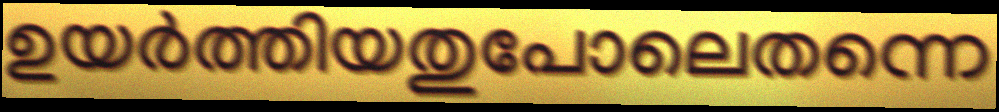
ഉയർത്തിയതുപോലെതന്നെ